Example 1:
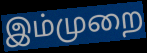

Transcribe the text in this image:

இம்முறை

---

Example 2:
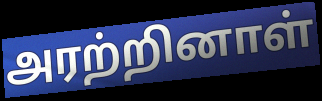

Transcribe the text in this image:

அரற்றினாள்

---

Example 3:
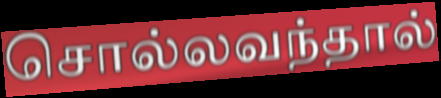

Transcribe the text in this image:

சொல்லவந்தால்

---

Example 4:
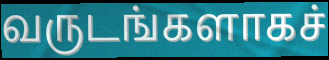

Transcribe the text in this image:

வருடங்களாகச்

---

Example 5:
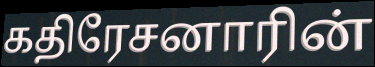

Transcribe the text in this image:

கதிரேசனாரின்